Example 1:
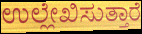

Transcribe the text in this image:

ಉಲ್ಲೇಖಿಸುತ್ತಾರೆ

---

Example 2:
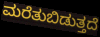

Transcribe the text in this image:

ಮರೆತುಬಿಡುತ್ತದೆ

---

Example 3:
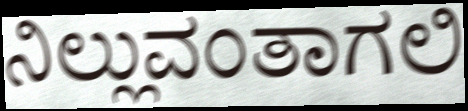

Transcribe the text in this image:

ನಿಲ್ಲುವಂತಾಗಲಿ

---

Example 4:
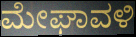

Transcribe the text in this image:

ಮೇಘಾವಳಿ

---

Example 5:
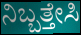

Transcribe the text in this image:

ನಿಬ್ಬತ್ತೇಸಿ